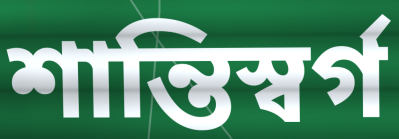
শান্তিস্বর্গ